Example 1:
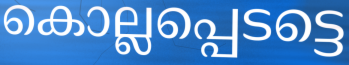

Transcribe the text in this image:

കൊല്ലപ്പെടട്ടെ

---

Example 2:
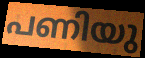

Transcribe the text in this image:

പണിയു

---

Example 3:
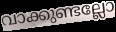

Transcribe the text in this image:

വാക്കുണ്ടല്ലോ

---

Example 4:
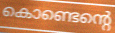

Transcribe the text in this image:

കൊണ്ടെന്റെ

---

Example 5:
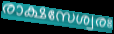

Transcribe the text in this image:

രാക്ഷസേശ്വരഃ